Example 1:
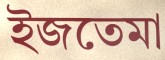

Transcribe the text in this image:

ইজতেমা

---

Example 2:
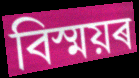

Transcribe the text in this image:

বিস্ময়ৰ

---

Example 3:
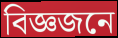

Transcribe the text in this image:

বিজ্ঞজনে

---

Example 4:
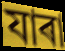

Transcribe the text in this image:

যাৰা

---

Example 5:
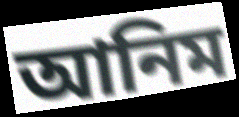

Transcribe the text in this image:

আনিম